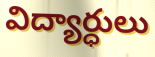
విద్యార్ధులు